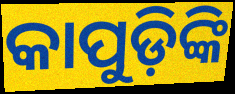
କାପୁଡ଼ିଙ୍କି